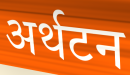
अर्थटन